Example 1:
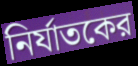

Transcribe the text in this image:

নির্যাতকের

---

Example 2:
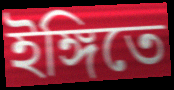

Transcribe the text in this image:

ইঙ্গিতে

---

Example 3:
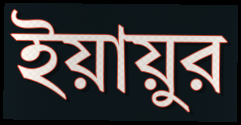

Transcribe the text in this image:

ইয়ায়ুর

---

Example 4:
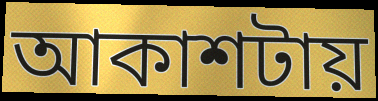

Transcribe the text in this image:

আকাশটায়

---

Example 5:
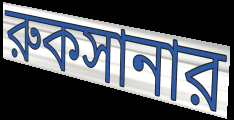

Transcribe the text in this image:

রুকসানার